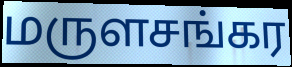
மருளசங்கர